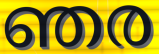
ഞര